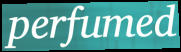
perfumed